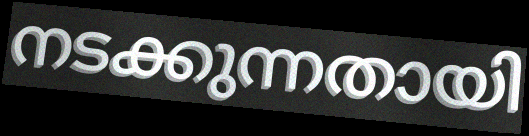
നടക്കുന്നതായി